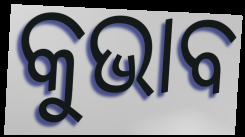
କୁଭାବ